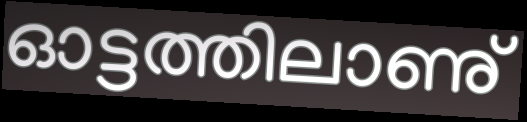
ഓട്ടത്തിലാണു്